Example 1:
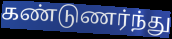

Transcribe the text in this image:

கண்டுணர்ந்து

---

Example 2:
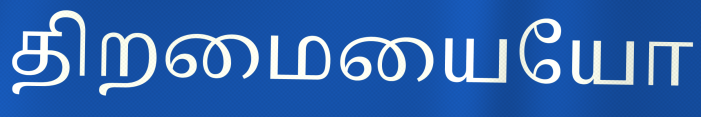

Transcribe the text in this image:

திறமையையோ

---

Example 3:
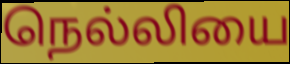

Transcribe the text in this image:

நெல்லியை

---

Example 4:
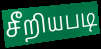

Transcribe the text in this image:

சீறியபடி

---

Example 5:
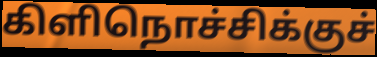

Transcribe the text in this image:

கிளிநொச்சிக்குச்